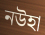
নউহা